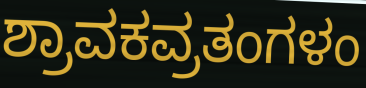
ಶ್ರಾವಕವ್ರತಂಗಳಂ